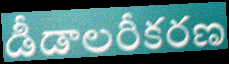
డీడాలరీకరణ